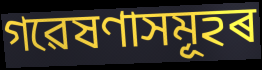
গৱেষণাসমূহৰ